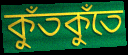
কুঁতকুঁতে